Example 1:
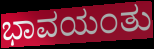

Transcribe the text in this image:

ಭಾವಯಂತು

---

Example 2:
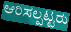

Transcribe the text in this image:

ಆರಿಸಲ್ಪಟ್ಟರು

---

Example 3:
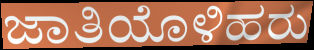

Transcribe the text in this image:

ಜಾತಿಯೊಳಿಹರು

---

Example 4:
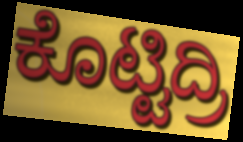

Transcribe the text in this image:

ಕೊಟ್ಟಿದ್ರಿ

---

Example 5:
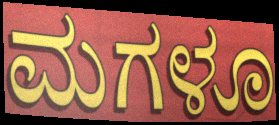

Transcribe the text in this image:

ಮಗಳೂ